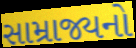
સામ્રાજ્યનો